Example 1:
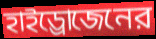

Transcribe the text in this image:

হাইড্রোজেনের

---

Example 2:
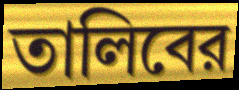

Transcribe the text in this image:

তালিবের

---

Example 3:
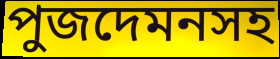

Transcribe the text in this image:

পুজদেমনসহ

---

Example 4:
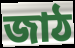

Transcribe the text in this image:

জাঠ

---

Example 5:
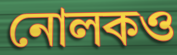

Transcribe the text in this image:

নোলকও